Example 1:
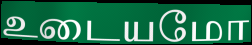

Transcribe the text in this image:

உடையமோ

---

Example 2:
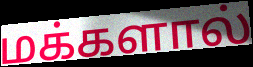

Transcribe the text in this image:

மக்களால்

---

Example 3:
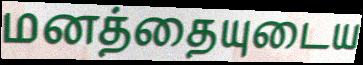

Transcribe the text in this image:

மனத்தையுடைய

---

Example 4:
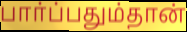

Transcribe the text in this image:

பார்ப்பதும்தான்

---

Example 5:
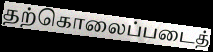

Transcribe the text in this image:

தற்கொலைப்படைத்